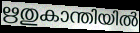
ഋതുകാന്തിയിൽ